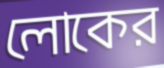
লোকের